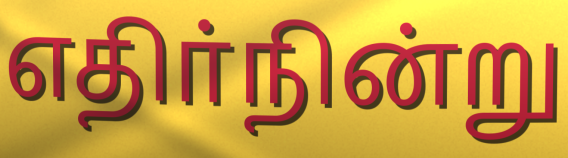
எதிர்நின்று